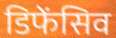
डिफेंसिव